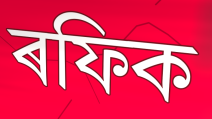
ৰফিক